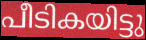
പീടികയിട്ടു